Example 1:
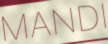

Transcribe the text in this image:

MANDI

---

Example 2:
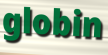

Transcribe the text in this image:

globin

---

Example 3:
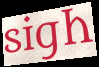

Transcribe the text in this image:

sigh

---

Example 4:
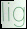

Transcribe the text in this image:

lig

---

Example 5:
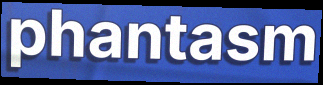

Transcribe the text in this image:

phantasm